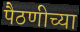
पैठणीच्या